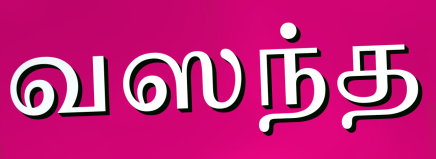
வஸந்த